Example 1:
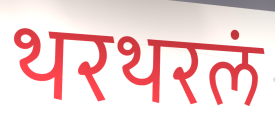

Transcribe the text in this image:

थरथरलं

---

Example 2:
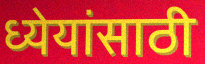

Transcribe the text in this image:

ध्येयांसाठी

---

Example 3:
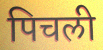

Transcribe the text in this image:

पिचली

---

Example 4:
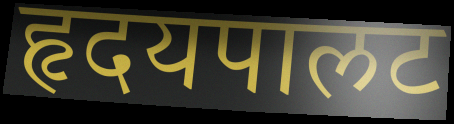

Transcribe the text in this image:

हृदयपालट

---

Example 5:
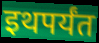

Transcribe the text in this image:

इथपर्यंत